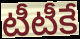
టీటీకే